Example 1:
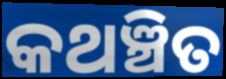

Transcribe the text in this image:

କଥଞ୍ଚିତ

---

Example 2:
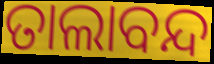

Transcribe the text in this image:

ତାଲାବନ୍ଦ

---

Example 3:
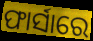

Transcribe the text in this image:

ଫାର୍ସାରେ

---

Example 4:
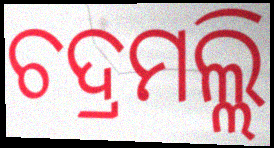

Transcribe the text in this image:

ଚଦ୍ରମଲ୍ଲି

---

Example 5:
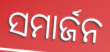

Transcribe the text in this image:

ସମାର୍ଜନ